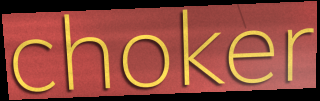
choker